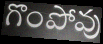
గొంపోవు